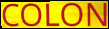
COLON